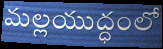
మల్లయుద్ధంలో